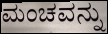
ಮಂಚವನ್ನು